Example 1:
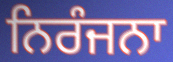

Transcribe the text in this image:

ਨਿਰੰਜਨਾ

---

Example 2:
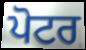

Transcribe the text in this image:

ਪੋਟਰ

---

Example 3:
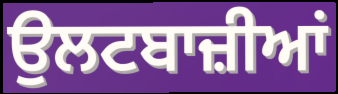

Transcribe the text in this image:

ਉਲਟਬਾਜ਼ੀਆਂ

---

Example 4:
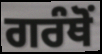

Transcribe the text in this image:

ਗਰੰਥੋਂ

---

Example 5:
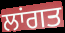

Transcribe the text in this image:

ਲਾਂਗਤ